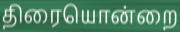
திரையொன்றை